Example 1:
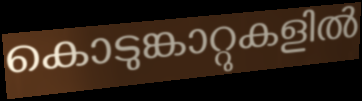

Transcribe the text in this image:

കൊടുങ്കാറ്റുകളിൽ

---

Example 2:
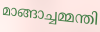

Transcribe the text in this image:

മാങ്ങാച്ചമ്മന്തി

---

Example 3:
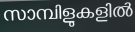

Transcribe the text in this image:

സാമ്പിളുകളിൽ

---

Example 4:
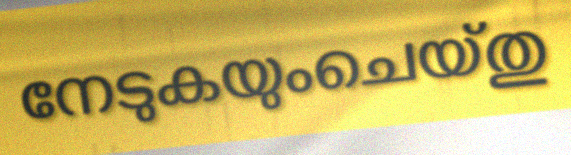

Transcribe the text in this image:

നേടുകയുംചെയ്തു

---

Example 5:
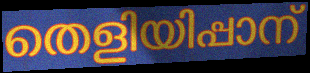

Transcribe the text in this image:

തെളിയിപ്പാന്